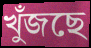
খুঁজছে